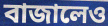
বাজালেও